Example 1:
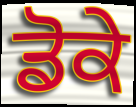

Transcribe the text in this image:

ਡੋਕੇ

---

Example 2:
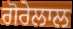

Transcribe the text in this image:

ਗੋਰੇਲਾਲ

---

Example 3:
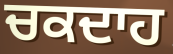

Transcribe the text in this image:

ਚਕਦਾਹ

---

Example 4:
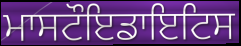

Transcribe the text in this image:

ਮਾਸਟੌਇਡਾਇਟਿਸ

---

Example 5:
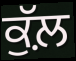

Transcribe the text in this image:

ਕੁੱਲ਼